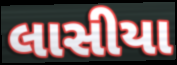
લાસીયા